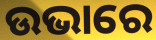
ଉଭାରେ